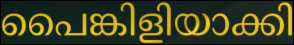
പൈങ്കിളിയാക്കി